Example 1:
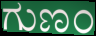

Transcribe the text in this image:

ಗುಣಂ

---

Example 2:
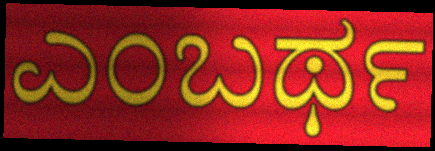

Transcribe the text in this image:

ಎಂಬರ್ಥ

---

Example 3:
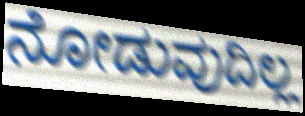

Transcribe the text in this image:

ನೋಡುವುದಿಲ್ಲ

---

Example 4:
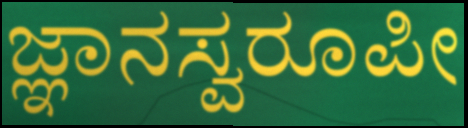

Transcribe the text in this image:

ಜ್ಞಾನಸ್ವರೂಪೀ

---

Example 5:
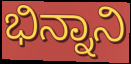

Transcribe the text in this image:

ಭಿನ್ನಾನಿ